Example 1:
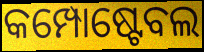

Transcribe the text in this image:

କମ୍ପୋଷ୍ଟେବଲ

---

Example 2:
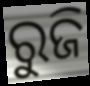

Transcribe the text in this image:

ରୁଜି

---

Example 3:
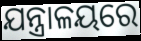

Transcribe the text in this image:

ଯନ୍ତ୍ରାଳୟରେ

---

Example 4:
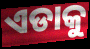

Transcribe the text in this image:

ଏଡାକୁ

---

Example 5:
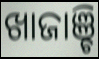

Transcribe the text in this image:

ଖାଜାଞ୍ଚି